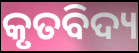
କୃତବିଦ୍ୟ